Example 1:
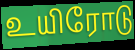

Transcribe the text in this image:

உயிரோடு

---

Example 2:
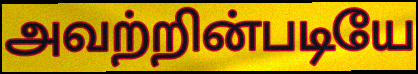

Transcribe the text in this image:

அவற்றின்படியே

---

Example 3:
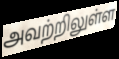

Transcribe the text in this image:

அவற்றிலுள்ள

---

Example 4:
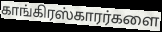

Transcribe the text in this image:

காங்கிரஸ்காரர்களை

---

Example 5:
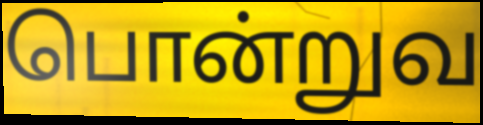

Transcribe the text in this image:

பொன்றுவ